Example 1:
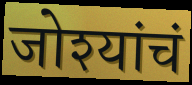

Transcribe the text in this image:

जोश्यांचं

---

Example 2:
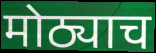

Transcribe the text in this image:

मोठ्याच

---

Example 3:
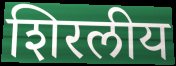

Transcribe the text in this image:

शिरलीय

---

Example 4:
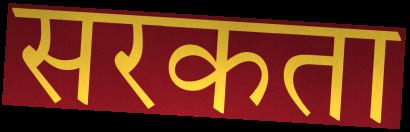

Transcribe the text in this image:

सरकता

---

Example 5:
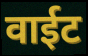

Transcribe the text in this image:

वाईट